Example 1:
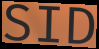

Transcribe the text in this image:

SID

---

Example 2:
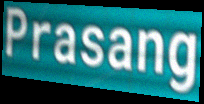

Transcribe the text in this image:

Prasang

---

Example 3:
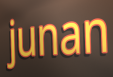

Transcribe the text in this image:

junan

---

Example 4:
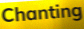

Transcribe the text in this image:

Chanting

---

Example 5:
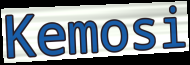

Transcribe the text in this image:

Kemosi